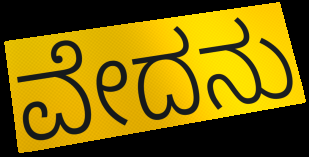
ವೇದನು